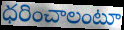
ధరించాలంటూ